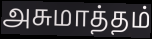
அசுமாத்தம்